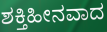
ಶಕ್ತಿಹೀನವಾದ